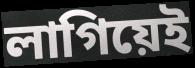
লাগিয়েই